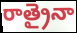
రాత్రైనా